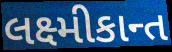
લક્ષ્મીકાન્ત